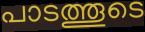
പാടത്തൂടെ